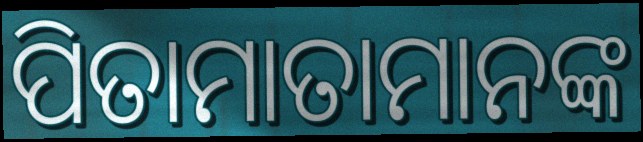
ପିତାମାତାମାନଙ୍କ